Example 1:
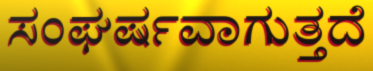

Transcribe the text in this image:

ಸಂಘರ್ಷವಾಗುತ್ತದೆ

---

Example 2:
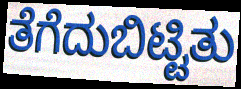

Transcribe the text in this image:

ತೆಗೆದುಬಿಟ್ಟಿತು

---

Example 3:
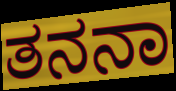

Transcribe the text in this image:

ತನನಾ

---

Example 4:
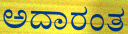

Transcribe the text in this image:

ಅದಾರಂತ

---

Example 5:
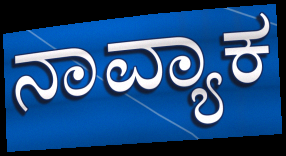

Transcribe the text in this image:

ನಾವ್ಯಾಕ